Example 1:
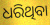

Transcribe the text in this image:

ଧରିଥିବା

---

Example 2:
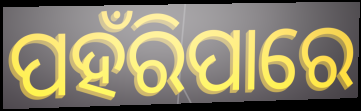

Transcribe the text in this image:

ପହଁରିପାରେ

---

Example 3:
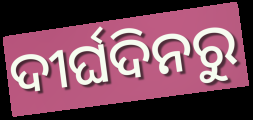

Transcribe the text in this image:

ଦୀର୍ଘଦିନରୁ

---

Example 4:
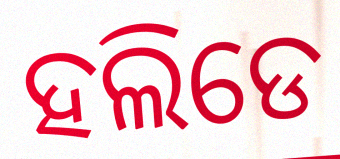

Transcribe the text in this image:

ହଲିଡେ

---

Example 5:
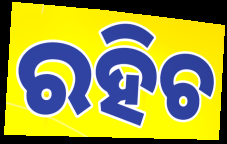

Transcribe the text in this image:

ରହିଚ